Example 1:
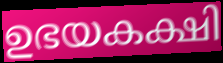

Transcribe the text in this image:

ഉഭയകക്ഷി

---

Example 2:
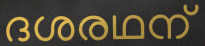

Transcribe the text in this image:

ദശരഥന്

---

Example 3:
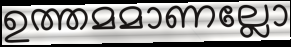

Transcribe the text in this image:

ഉത്തമമാണല്ലോ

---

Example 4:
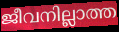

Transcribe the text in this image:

ജീവനില്ലാത്ത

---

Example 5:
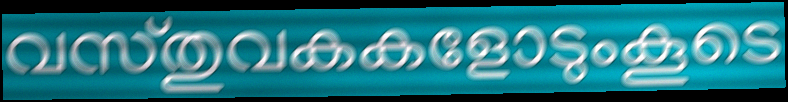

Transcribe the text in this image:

വസ്തുവകകളോടുംകൂടെ